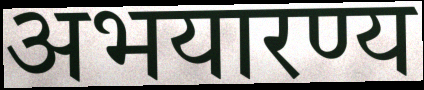
अभयारण्य